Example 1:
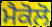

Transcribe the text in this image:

ਮੈਕੋਲੋ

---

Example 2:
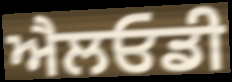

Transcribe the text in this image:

ਐਲਓਡੀ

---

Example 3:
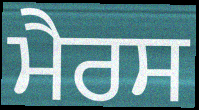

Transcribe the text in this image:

ਮੈਰਸ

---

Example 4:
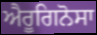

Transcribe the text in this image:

ਐਰੂਗਿਨੋਸਾ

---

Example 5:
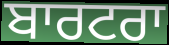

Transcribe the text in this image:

ਬਾਰਟਰਾ